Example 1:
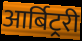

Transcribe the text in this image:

आर्बिट्ररी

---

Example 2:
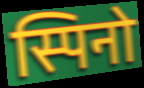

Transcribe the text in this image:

स्पिनो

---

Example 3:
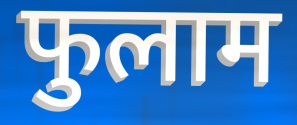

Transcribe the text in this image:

फुलाम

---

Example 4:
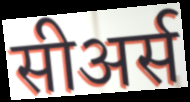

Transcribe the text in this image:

सीअर्स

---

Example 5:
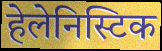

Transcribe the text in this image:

हेलेनिस्टिक